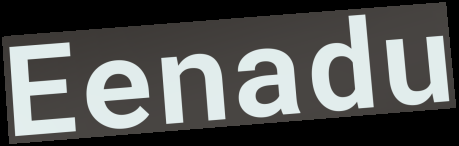
Eenadu